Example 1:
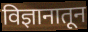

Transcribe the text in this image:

विज्ञानातून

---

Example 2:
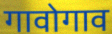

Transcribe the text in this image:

गावोगाव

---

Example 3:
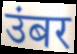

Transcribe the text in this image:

उंबर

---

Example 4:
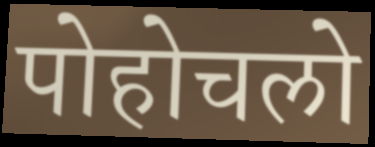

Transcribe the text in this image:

पोहोचलो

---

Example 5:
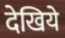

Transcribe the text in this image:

देखिये